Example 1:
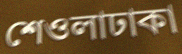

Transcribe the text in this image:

শেওলাঢাকা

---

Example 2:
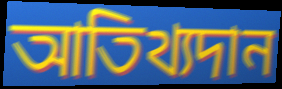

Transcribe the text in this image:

আতিথ্যদান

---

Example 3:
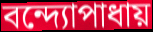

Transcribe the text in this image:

বন্দ্যোপাধায়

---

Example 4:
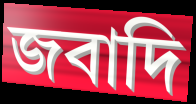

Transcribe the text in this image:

জবাদি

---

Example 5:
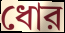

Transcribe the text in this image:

ধোর